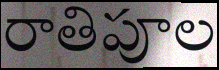
రాతిపూల